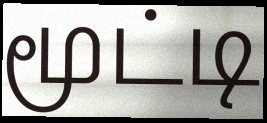
மூட்டி